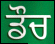
ਡੌਚ